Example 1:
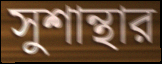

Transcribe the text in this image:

সুশান্থার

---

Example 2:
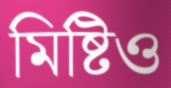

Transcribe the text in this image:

মিষ্টিও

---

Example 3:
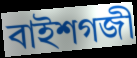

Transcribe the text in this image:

বাইশগজী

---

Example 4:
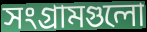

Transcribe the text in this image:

সংগ্রামগুলো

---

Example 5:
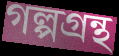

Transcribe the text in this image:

গল্পগ্রন্থ